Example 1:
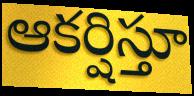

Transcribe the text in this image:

ఆకర్షిస్తూ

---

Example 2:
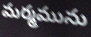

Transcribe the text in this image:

మర్మమును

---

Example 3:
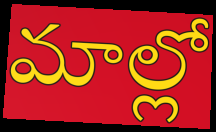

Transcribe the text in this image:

మాల్లో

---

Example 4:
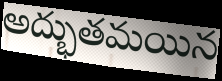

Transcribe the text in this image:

అద్భుతమయిన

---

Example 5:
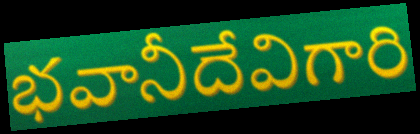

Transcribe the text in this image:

భవానీదేవిగారి